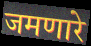
जमणारे